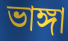
ভাঙ্গা